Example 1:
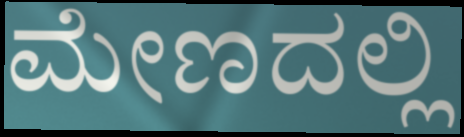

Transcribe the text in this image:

ಮೇಣದಲ್ಲಿ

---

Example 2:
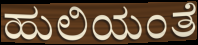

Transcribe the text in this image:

ಹುಲಿಯಂತೆ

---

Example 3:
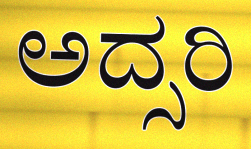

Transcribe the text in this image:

ಅದ್ಸರಿ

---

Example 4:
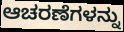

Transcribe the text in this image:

ಆಚರಣೆಗಳನ್ನು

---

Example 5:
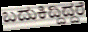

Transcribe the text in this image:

ಬದುಕಿದ್ದಿದ್ದರೆ